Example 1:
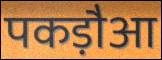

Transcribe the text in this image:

पकड़ौआ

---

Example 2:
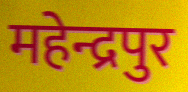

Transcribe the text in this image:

महेन्द्रपुर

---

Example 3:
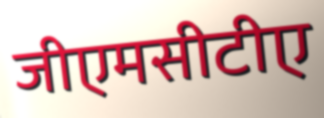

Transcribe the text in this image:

जीएमसीटीए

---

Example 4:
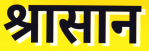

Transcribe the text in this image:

श्रासान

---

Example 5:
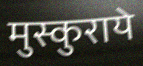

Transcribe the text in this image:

मुस्कुराये